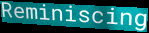
Reminiscing